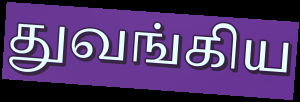
துவங்கிய